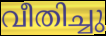
വീതിച്ചു